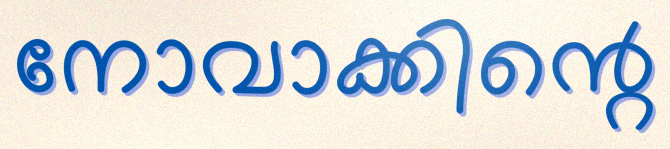
നോവാക്കിന്റെ